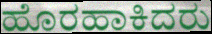
ಹೊರಹಾಕಿದರು